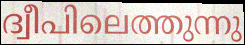
ദ്വീപിലെത്തുന്നു